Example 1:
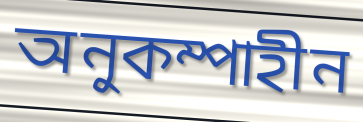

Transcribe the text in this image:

অনুকম্পাহীন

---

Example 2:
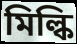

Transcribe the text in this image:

মিল্কি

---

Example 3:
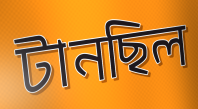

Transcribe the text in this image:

টানছিল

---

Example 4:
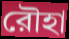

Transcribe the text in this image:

রৌহা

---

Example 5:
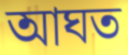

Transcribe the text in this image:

আঘত